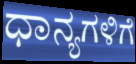
ಧಾನ್ಯಗಳಿಗೆ